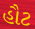
હૌટ